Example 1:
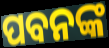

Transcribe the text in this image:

ପବନଙ୍କ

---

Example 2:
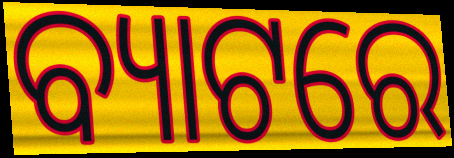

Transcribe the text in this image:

ବ୍ୟାଟରେ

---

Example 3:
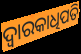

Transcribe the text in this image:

ଦ୍ୱାରକାଧିପତି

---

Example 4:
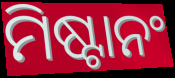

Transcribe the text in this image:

ମିଷ୍ଟାନଂ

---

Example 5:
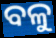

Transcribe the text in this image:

ବଳୁ